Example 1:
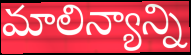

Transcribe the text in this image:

మాలిన్యాన్ని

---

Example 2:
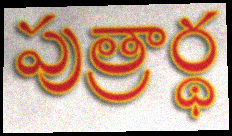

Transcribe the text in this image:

పుత్రార్థ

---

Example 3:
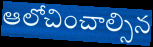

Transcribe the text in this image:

ఆలోచించాల్సిన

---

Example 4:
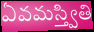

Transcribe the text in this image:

ఏవమస్త్వితి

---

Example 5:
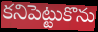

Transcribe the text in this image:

కనిపెట్టుకొను